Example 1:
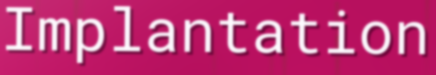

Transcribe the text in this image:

Implantation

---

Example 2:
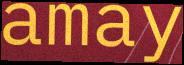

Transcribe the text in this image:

amay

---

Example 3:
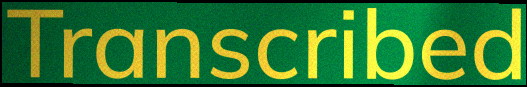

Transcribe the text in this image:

Transcribed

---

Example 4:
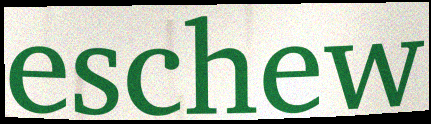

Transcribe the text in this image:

eschew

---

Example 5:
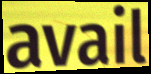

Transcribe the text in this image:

avail